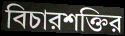
বিচারশক্তির